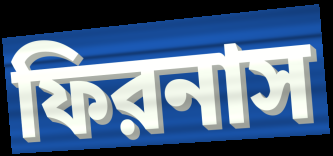
ফিরনাস